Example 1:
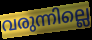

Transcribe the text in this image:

വരുന്നില്ലെ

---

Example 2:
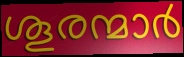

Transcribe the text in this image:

ശൂരന്മാർ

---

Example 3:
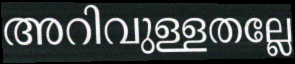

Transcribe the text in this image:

അറിവുള്ളതല്ലേ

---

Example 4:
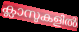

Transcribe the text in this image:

ക്ലാസുകളിൽ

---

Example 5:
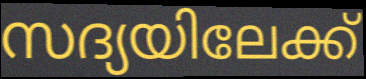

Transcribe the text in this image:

സദ്യയിലേക്ക്